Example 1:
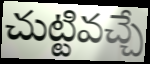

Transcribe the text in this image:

చుట్టివచ్చే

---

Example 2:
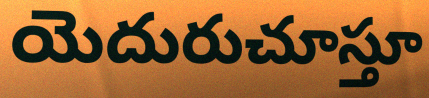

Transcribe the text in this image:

యెదురుచూస్తూ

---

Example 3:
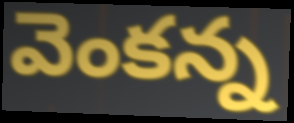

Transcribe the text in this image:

వెంకన్న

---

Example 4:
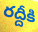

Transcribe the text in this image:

రద్దీకి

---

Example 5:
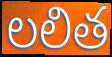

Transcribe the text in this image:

లలిత